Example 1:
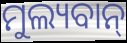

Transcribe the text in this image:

ମୁଲ୍ୟବାନ୍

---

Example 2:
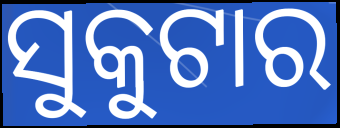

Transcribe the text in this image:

ସୁକୁଟାର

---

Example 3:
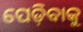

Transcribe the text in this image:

ପେଡ଼ିବାକୁ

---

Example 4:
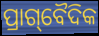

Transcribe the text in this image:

ପ୍ରାଗ୍‌ବୈଦିକ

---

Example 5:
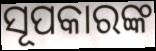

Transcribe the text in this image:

ସୂପକାରଙ୍କ